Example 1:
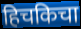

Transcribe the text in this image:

हिचकिचा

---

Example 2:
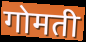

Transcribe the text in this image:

गोमती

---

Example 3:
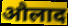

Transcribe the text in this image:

औलाद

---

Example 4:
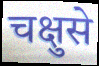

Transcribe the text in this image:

चक्षुसे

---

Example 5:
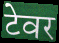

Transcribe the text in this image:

टेवर